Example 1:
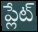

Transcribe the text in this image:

ప్లేట్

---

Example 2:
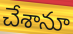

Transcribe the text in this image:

చేశానూ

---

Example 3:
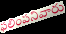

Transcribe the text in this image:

ఫలింపనివారు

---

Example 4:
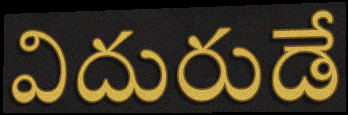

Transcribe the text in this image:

విదురుడే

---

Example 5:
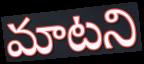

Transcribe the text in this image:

మాటని